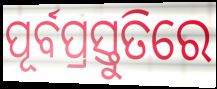
ପୂର୍ବପ୍ରସ୍ତୁତିରେ